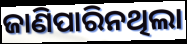
ଜାଣିପାରିନଥିଲା